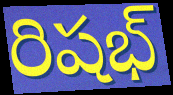
రిషభ్